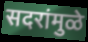
सदरांमुळे